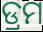
ଡ୍ରମ